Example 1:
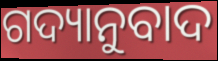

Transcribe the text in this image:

ଗଦ୍ୟାନୁବାଦ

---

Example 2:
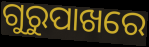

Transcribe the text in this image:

ଗୁରୁପାଖରେ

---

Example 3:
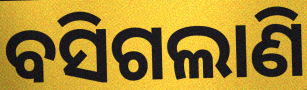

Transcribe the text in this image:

ବସିଗଲାଣି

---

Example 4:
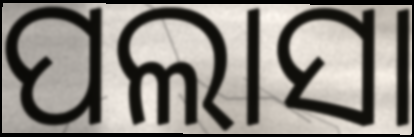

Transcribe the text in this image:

ପଲାସା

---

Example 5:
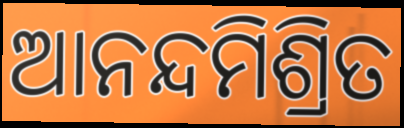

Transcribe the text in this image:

ଆନନ୍ଦମିଶ୍ରିତ